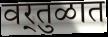
वर्तुळात